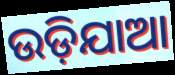
ଉଡ଼ିଯାଆ